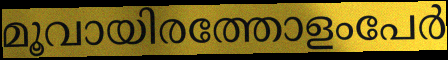
മൂവായിരത്തോളംപേർ